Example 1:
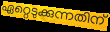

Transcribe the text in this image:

ഏറ്റെടുക്കുന്നതിന്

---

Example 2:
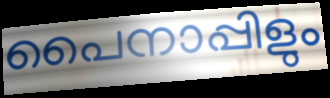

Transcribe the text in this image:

പൈനാപ്പിളും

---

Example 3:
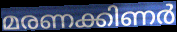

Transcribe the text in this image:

മരണക്കിണർ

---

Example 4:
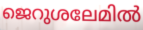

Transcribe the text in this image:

ജെറുശലേമിൽ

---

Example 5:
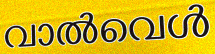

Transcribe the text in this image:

വാൽവെൾ